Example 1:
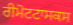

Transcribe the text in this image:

ਰੀਮੋਟਟਾਸਕਸ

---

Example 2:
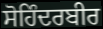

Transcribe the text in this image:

ਸੋਹਿੰਦਰਬੀਰ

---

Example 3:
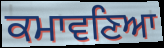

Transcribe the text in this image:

ਕਮਾਵਣਿਆ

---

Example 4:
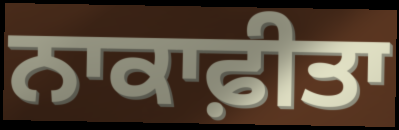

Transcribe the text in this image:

ਨਾਕਾਫ਼ੀਤਾ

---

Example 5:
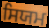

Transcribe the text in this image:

ਸਿਯਮ